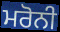
ਮਰੋਨੀ